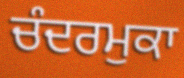
ਚੰਦਰਮੁਕਾ